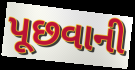
પૂછવાની